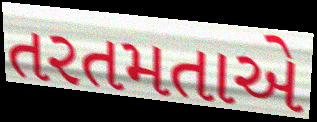
તરતમતાએ